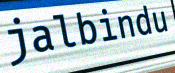
jalbindu